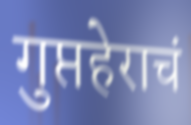
गुप्तहेराचं